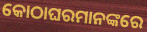
କୋଠାଘରମାନଙ୍କରେ